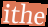
ithe